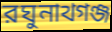
রঘুনাথগঞ্জ